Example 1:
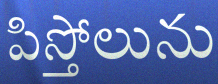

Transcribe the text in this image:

పిస్తోలును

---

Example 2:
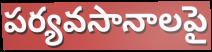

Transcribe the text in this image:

పర్యవసానాలపై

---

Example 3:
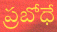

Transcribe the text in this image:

ప్రబోధే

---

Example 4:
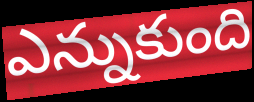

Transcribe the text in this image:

ఎన్నుకుంది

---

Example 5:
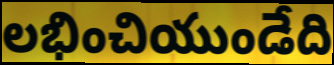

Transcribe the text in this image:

లభించియుండేది